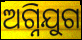
ଅଗ୍ନିଯୁଗ